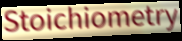
Stoichiometry